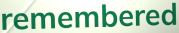
remembered